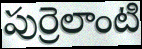
పుర్రెలాంటి